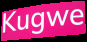
Kugwe